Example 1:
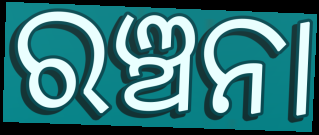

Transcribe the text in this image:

ରଞ୍ଚନା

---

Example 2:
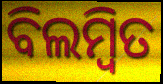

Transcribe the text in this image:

ବିଲମ୍ୱିତ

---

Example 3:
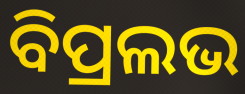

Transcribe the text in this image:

ବିପ୍ରଲଭ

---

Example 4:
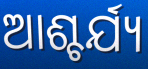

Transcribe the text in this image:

ଆଶ୍ଚର୍ଯ୍ୟ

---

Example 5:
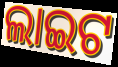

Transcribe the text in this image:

ଲାଇଟ